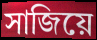
সাজিয়ে